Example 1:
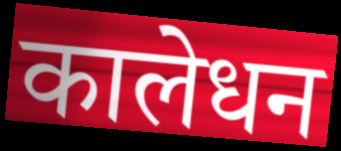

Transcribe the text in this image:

कालेधन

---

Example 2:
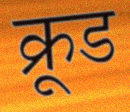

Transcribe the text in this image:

क्रूड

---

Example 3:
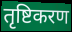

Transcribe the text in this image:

तृष्टिकरण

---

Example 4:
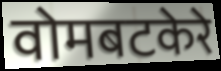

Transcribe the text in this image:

वोमबटकेरे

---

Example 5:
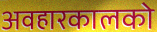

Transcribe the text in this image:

अवहारकालको